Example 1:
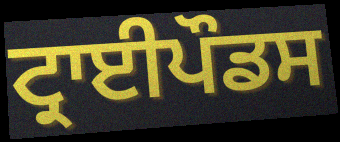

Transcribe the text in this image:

ਟ੍ਰਾਈਪੌਡਸ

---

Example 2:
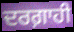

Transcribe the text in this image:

ਦਰਗ਼ਾਹੀ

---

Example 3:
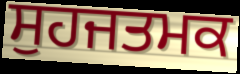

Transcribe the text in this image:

ਸੁਹਜਤਮਕ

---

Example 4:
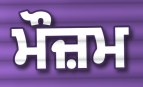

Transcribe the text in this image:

ਮੌਜ਼ਮ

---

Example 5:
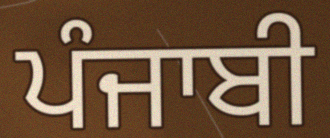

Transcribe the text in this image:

ਪੰਜਾਬੀ